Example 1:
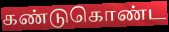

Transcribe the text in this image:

கண்டுகொண்ட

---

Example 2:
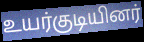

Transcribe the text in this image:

உயர்குடியினர்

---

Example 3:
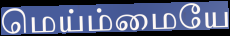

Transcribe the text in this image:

மெய்ம்மையே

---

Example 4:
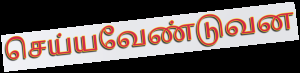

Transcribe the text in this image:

செய்யவேண்டுவன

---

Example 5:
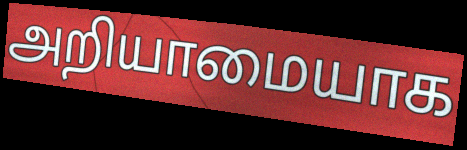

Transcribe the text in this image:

அறியாமையாக